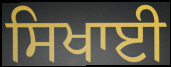
ਸਿਖਾਈ